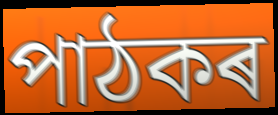
পাঠকৰ